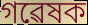
গৱেষক